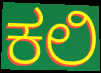
ಕಲಿ